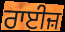
ਰਾਈਜ਼